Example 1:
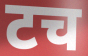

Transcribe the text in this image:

टच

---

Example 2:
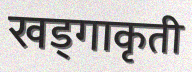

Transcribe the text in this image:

खड्गाकृती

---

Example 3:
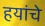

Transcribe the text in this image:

हयांचे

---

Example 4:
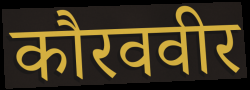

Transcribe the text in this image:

कौरववीर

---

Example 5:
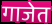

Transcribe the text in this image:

गाजेत